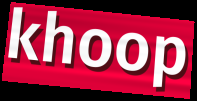
khoop